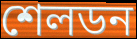
শেলডন